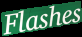
Flashes